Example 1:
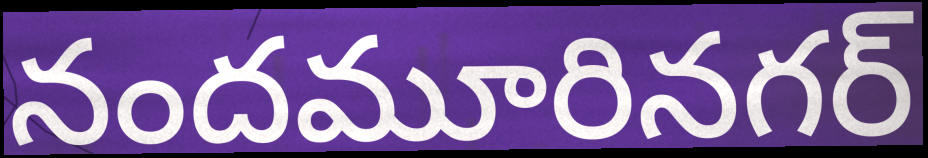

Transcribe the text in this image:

నందమూరినగర్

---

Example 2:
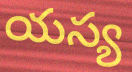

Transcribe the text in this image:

యస్య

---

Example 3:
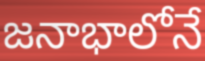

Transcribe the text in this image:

జనాభాలోనే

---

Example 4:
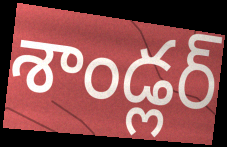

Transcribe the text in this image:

శాండ్లర్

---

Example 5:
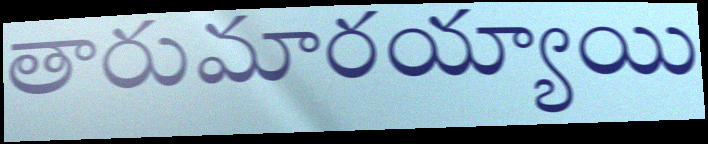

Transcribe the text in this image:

తారుమారయ్యాయి